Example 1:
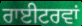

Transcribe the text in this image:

ਰਾਈਟਰਵਾਂ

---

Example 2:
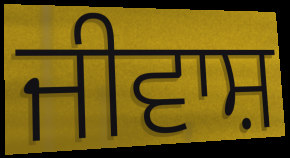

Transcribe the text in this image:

ਜੀਵਾਸ਼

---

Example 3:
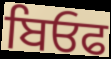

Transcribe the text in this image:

ਬਿਓਫ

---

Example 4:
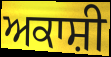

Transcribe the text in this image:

ਅਕਾਸ਼ੀ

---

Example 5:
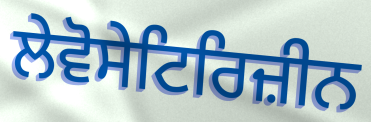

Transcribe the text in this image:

ਲੇਵੋਸੇਟਿਰਿਜ਼ੀਨ